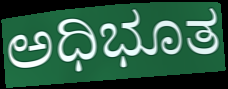
ಅಧಿಭೂತ